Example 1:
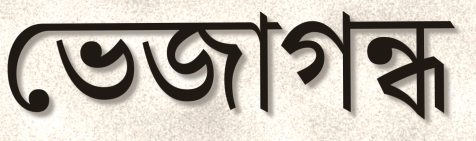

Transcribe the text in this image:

ভেজাগন্ধ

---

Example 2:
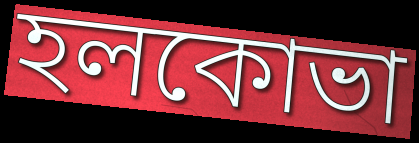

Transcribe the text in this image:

হলকোভা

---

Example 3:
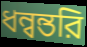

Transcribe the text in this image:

ধন্বন্তরি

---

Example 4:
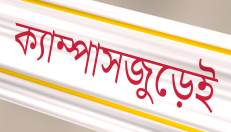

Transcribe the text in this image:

ক্যাম্পাসজুড়েই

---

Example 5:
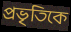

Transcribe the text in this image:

প্রভৃতিকে